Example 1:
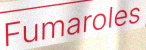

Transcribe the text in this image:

Fumaroles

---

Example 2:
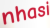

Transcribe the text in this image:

nhasi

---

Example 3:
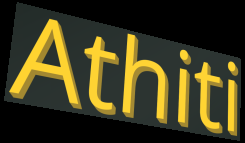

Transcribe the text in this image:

Athiti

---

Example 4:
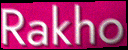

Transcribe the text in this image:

Rakho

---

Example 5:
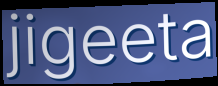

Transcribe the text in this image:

jigeeta